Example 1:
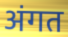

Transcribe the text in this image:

अंगत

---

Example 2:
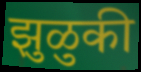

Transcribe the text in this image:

झुळुकी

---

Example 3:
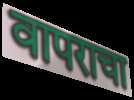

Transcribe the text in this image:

वापराचा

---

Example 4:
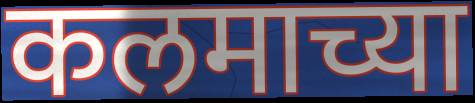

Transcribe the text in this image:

कलमाच्या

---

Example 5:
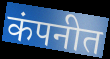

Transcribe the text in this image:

कंपनीत